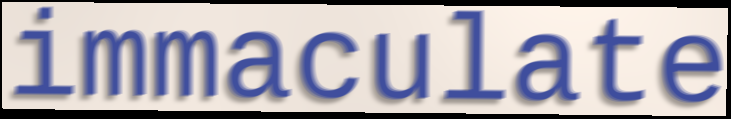
immaculate